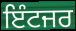
ਇੰਟਜਰ